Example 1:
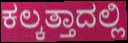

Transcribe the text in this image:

ಕಲ್ಕತ್ತಾದಲ್ಲಿ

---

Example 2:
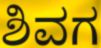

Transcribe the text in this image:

ಶಿವಗ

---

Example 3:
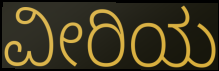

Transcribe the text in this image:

ವೀರಿಯ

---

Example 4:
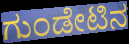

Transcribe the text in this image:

ಗುಂಡೇಟಿನ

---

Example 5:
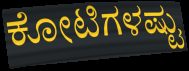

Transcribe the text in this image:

ಕೋಟಿಗಳಷ್ಟು